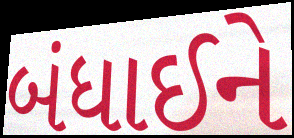
બંધાઈને